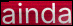
ainda